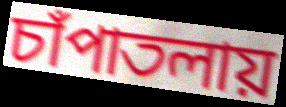
চাঁপাতলায়